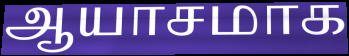
ஆயாசமாக